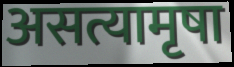
असत्यामृषा